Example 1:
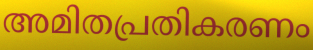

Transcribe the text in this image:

അമിതപ്രതികരണം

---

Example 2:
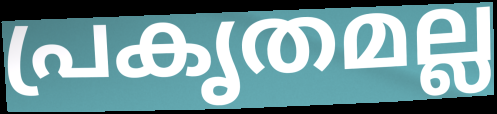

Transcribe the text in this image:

പ്രകൃതമല്ല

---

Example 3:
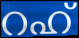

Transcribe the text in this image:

റഹ്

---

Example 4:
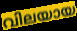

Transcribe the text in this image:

വിലയായ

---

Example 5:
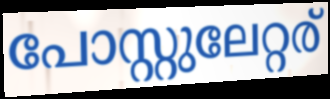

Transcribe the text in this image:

പോസ്റ്റുലേറ്റര്